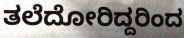
ತಲೆದೋರಿದ್ದರಿಂದ